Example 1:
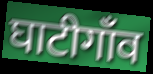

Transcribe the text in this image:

घाटीगाँव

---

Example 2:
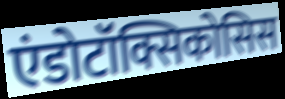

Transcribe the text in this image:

एंडोटॉक्सिकोसिस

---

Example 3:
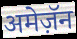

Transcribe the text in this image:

अमेज़ॅन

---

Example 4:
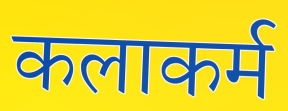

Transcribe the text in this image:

कलाकर्म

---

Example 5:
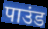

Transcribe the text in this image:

पाउंड